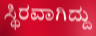
ಸ್ಥಿರವಾಗಿದ್ದು